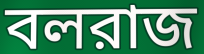
বলরাজ